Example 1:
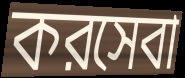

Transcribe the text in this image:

করসেবা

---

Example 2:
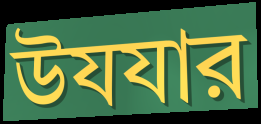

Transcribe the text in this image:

উযযার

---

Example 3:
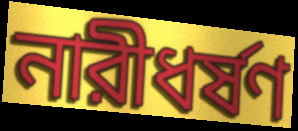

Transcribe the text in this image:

নারীধর্ষণ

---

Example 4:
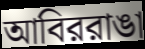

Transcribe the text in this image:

আবিররাঙা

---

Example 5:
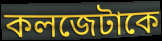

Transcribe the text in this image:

কলজেটাকে